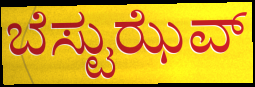
ಬೆಸ್ಟುಝೆವ್